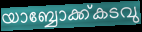
യാബ്ബോക്ക്കടവു